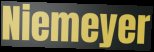
Niemeyer